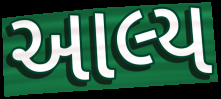
આલ્ય